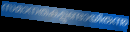
സമാനതകളുണ്ടായിരുന്നു